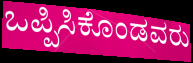
ಒಪ್ಪಿಸಿಕೊಂಡವರು